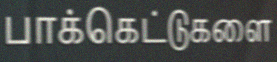
பாக்கெட்டுகளை